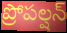
ప్రోపల్షన్